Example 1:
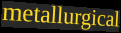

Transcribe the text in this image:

metallurgical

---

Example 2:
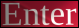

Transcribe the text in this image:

Enter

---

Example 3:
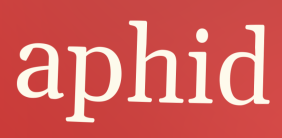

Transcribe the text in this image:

aphid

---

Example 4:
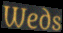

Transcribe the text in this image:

Weds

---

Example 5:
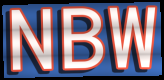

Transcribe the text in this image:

NBW